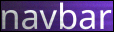
navbar